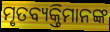
ମୃତବ୍ୟକ୍ତିମାନଙ୍କ